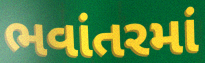
ભવાંતરમાં